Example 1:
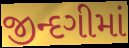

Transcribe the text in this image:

જીન્દગીમાં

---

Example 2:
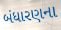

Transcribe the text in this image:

બંધારણના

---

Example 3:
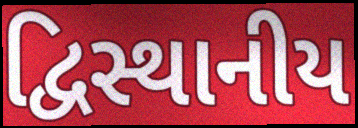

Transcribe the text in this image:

દ્વિસ્થાનીય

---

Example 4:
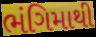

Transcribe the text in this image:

ભંગિમાથી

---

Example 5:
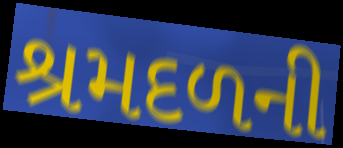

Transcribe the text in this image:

શ્રમદળની